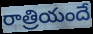
రాత్రియందే